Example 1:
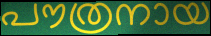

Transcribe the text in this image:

പൗത്രനായ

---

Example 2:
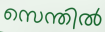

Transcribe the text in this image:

സെന്തിൽ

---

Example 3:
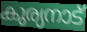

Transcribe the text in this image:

കുര്യനാട്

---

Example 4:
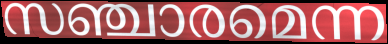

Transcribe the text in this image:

സഞ്ചാരമെന്ന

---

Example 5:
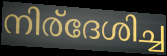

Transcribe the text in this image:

നിര്ദേശിച്ച